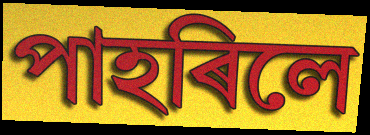
পাহৰিলে